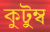
কুটুম্ব